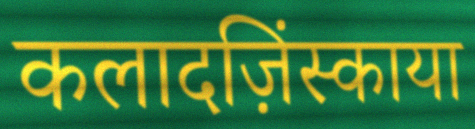
कलादज़िंस्काया